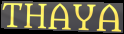
THAYA